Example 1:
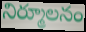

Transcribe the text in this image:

నిర్మూలనం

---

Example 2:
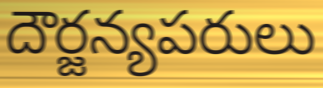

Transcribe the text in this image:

దౌర్జన్యపరులు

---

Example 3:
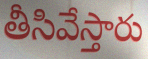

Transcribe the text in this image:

తీసివేస్తారు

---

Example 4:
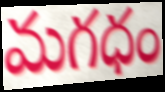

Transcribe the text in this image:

మగధం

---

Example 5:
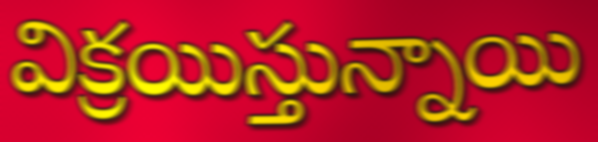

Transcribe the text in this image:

విక్రయిస్తున్నాయి